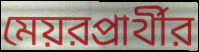
মেয়রপ্রার্থীর